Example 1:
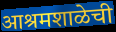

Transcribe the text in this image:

आश्रमशाळेची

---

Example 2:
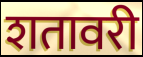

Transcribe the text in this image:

शतावरी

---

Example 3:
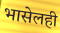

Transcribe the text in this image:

भासेलही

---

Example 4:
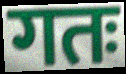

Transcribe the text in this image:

गतः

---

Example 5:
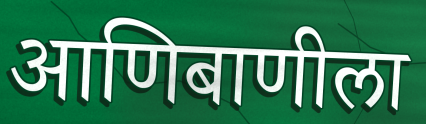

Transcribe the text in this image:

आणिबाणीला